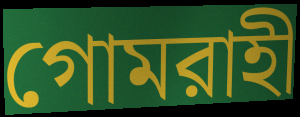
গোমরাহী